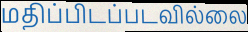
மதிப்பிடப்படவில்லை